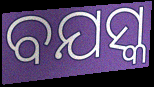
ବଯସ୍କ